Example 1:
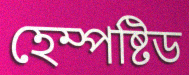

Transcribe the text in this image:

হেম্পষ্টিড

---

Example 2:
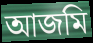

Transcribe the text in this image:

আজমি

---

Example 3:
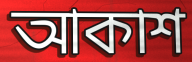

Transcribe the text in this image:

আকাশ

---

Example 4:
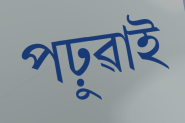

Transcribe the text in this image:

পঢ়ুৱাই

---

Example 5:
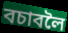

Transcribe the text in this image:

বচাবলৈ